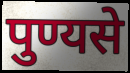
पुण्यसे